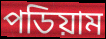
পডিয়াম